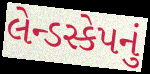
લેન્ડસ્કેપનું